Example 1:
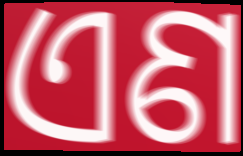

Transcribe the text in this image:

ଏଣ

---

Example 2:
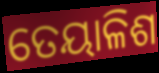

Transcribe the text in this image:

ତେୟାଳିଶ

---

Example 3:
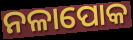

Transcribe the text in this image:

ନଳାପୋକ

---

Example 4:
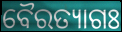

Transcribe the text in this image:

ବୈରତ୍ୟାଗଃ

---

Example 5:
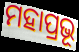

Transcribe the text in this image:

ମହାପ୍ରଭୂ